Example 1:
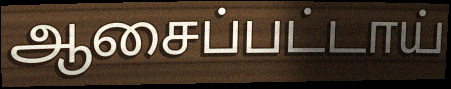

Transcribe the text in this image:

ஆசைப்பட்டாய்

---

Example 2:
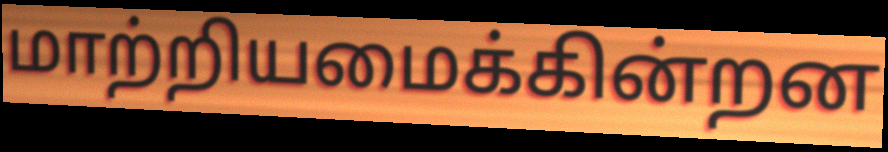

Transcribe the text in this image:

மாற்றியமைக்கின்றன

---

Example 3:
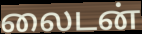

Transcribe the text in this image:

லைடன்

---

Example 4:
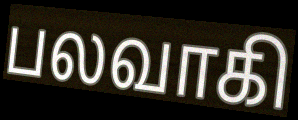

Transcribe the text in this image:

பலவாகி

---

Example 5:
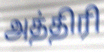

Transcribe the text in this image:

அத்திரி